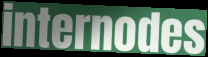
internodes